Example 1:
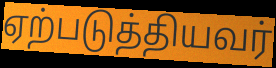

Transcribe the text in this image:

ஏற்படுத்தியவர்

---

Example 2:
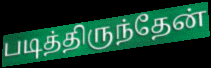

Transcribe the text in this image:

படித்திருந்தேன்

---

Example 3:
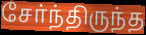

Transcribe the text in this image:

சேர்ந்திருந்த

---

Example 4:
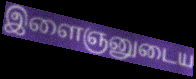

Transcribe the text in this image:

இளைஞனுடைய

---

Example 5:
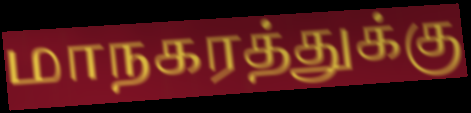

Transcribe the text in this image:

மாநகரத்துக்கு